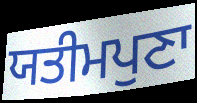
ਯਤੀਮਪੁਣਾ